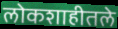
लोकशाहीतले